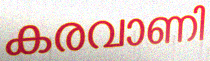
കരവാണി